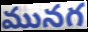
మునగ